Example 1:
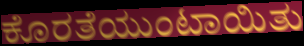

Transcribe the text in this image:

ಕೊರತೆಯುಂಟಾಯಿತು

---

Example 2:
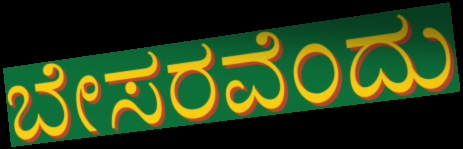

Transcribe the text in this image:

ಬೇಸರವೆಂದು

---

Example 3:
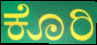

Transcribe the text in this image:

ಕೊರಿ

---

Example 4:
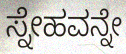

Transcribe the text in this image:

ಸ್ನೇಹವನ್ನೇ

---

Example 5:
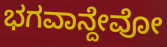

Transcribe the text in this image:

ಭಗವಾನ್ದೇವೋ